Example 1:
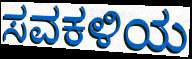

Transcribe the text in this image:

ಸವಕಳಿಯ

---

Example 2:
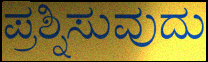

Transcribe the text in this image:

ಪ್ರಶ್ನಿಸುವುದು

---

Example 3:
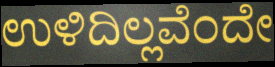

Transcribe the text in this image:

ಉಳಿದಿಲ್ಲವೆಂದೇ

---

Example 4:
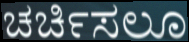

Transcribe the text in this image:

ಚರ್ಚಿಸಲೂ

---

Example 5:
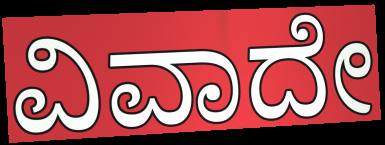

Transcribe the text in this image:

ವಿವಾದೇ